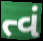
ત્વં